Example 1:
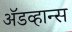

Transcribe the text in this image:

ॲडव्हान्स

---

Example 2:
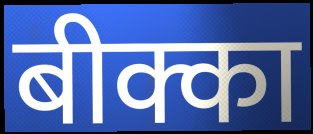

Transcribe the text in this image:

बीक्का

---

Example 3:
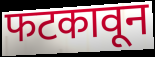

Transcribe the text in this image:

फटकावून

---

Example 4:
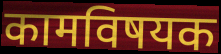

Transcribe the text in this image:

कामविषयक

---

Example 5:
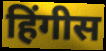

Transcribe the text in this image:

हिंगीस